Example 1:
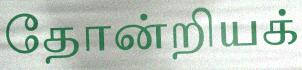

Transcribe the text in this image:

தோன்றியக்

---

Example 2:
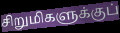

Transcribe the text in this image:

சிறுமிகளுக்குப்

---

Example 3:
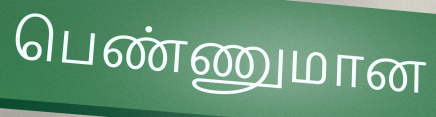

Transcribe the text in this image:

பெண்ணுமான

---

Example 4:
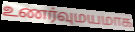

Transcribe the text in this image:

உணர்வுமயமாக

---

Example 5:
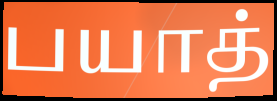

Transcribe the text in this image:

பயாத்